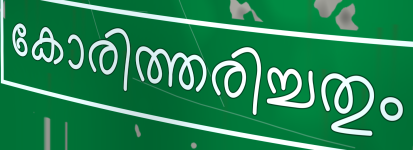
കോരിത്തരിച്ചതും